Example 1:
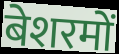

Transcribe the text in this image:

बेशरमों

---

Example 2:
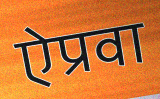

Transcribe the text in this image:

ऐप्रवा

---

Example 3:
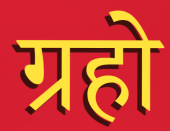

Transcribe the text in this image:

ग्रहो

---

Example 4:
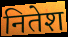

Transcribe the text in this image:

नितेश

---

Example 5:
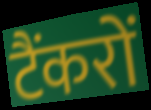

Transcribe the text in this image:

टैंकरों